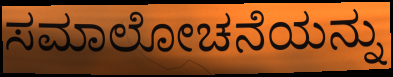
ಸಮಾಲೋಚನೆಯನ್ನು